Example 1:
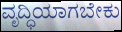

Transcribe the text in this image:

ವೃದ್ಧಿಯಾಗಬೇಕು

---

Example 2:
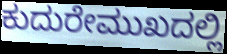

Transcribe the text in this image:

ಕುದುರೇಮುಖದಲ್ಲಿ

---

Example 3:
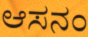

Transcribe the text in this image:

ಆಸನಂ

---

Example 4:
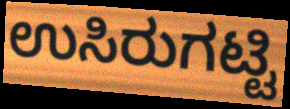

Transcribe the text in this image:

ಉಸಿರುಗಟ್ಟಿ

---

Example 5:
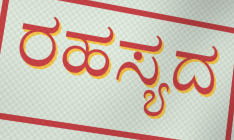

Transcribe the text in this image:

ರಹಸ್ಯದ